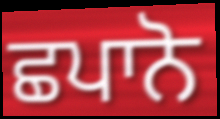
ਛਪਾਨੋ